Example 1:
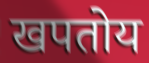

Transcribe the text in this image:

खपतोय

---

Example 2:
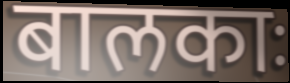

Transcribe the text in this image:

बालकाः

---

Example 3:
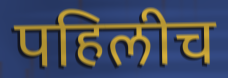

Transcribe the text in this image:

पहिलीच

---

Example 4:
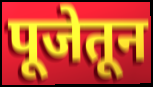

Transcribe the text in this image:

पूजेतून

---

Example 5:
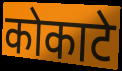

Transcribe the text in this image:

कोकाटे